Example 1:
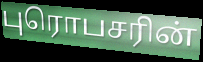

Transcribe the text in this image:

புரொபசரின்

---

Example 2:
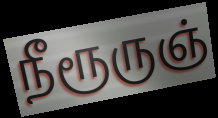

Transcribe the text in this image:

நீரூருஞ்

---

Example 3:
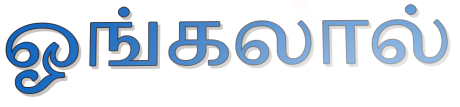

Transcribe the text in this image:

ஓங்கலால்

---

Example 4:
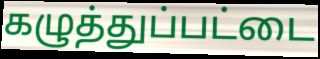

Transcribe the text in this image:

கழுத்துப்பட்டை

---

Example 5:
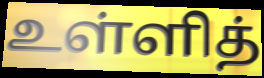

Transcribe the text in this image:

உள்ளித்